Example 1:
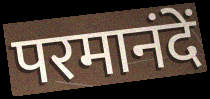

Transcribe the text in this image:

परमानंदें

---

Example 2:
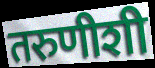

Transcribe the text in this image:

तरुणीशी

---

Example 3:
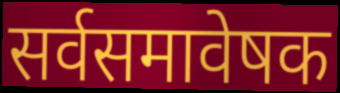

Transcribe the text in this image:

सर्वसमावेषक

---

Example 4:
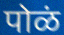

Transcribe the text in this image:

पोळं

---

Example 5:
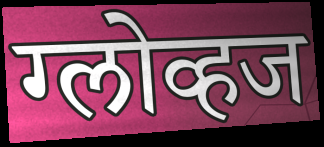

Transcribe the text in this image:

ग्लोव्हज